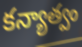
కన్యాత్వం